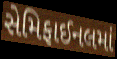
સેમિફાઈનલમાં